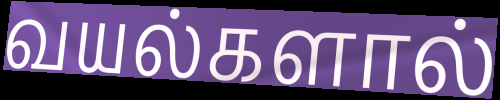
வயல்களால்